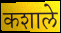
कशाले